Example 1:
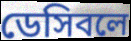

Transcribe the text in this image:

ডেসিবলে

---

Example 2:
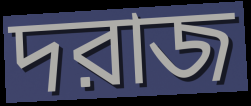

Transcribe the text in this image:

দরাজ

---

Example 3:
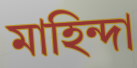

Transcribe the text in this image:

মাহিন্দা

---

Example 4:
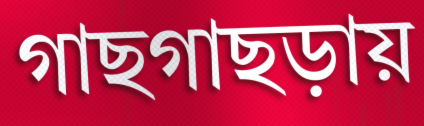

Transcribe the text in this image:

গাছগাছড়ায়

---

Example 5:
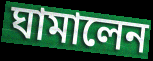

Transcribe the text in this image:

ঘামালেন